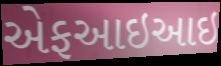
એફઆઇઆઇ